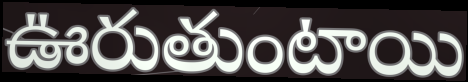
ఊరుతుంటాయి